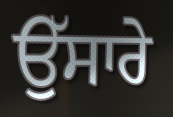
ਉੱਸਾਰੇ